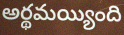
అర్థమయ్యింది